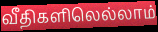
வீதிகளிலெல்லாம்